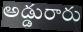
అడ్డురారు